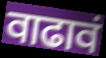
वाढावं